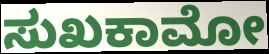
ಸುಖಕಾಮೋ